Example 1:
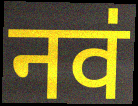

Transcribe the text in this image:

नव॑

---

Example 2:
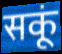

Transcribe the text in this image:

सकूं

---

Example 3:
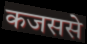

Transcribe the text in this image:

कजससे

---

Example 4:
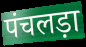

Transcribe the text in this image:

पंचलड़ा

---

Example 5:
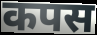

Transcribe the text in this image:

कपस